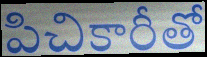
పిచికారీతో